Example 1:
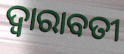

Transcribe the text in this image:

ଦ୍ଵାରାବତୀ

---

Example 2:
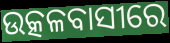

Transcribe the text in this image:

ଉତ୍କଳବାସୀରେ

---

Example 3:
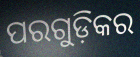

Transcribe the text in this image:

ପରଗୁଡ଼ିକର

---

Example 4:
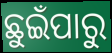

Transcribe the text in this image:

ଛୁଇଁପାରୁ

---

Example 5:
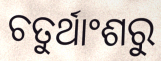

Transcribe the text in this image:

ଚତୁର୍ଥାଂଶରୁ